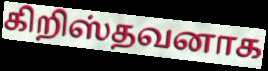
கிறிஸ்தவனாக